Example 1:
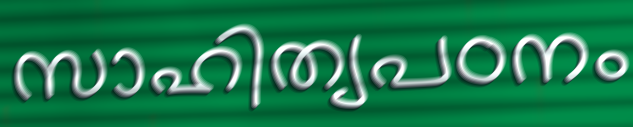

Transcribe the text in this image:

സാഹിത്യപഠനം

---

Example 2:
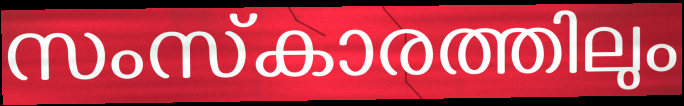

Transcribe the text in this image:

സംസ്‌കാരത്തിലും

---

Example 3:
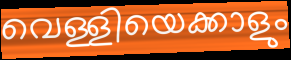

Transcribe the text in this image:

വെള്ളിയെക്കാളും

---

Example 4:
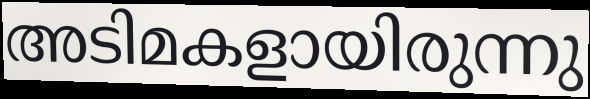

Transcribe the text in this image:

അടിമകളായിരുന്നു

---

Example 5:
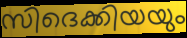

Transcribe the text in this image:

സിദെക്കിയയും